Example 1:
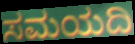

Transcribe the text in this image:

ಸಮಯದಿ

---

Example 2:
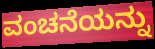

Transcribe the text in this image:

ವಂಚನೆಯನ್ನು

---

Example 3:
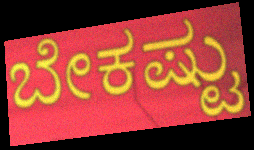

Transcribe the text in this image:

ಬೇಕಷ್ಟು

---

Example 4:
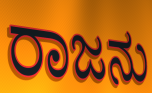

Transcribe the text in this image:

ರಾಜನು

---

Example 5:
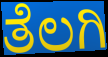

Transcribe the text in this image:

ತೆಲಗಿ